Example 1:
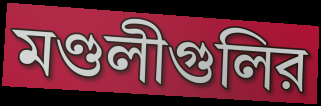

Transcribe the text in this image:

মণ্ডলীগুলির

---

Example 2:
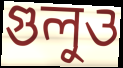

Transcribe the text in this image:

গুলুও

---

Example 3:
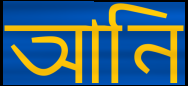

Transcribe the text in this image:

আনি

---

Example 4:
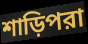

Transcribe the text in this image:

শাড়িপরা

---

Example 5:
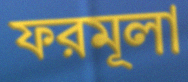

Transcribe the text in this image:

ফরমূলা